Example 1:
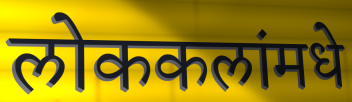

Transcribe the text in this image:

लोककलांमधे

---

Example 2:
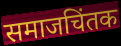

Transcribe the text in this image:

समाजचिंतक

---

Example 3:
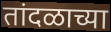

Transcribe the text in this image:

तांदळाच्या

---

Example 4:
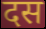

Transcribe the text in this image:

दस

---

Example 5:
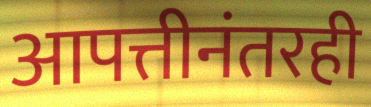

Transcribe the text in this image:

आपत्तीनंतरही